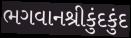
ભગવાનશ્રીકુંદકુંદ